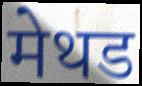
मेथड